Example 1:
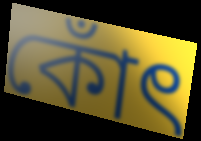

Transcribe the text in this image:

কোঁৎ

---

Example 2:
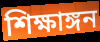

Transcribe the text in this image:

শিক্ষাঙ্গন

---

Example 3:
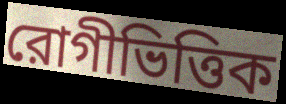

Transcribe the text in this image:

রোগীভিত্তিক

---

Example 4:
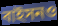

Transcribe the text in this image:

বাইসনও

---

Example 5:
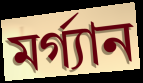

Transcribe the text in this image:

মর্গ্যান